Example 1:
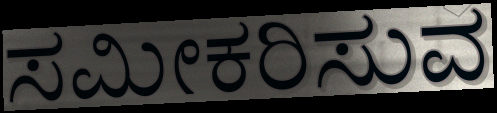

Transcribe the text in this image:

ಸಮೀಕರಿಸುವ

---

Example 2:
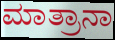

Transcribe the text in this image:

ಮಾತ್ರಾನಾ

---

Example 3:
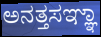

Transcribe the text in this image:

ಅನತ್ತಸಞ್ಞಾ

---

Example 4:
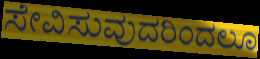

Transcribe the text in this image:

ಸೇವಿಸುವುದರಿಂದಲೂ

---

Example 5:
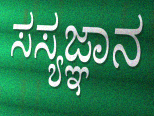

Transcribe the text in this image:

ಸಸ್ಯಜ್ಞಾನ